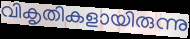
വികൃതികളായിരുന്നു